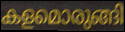
കളമൊരുങ്ങി